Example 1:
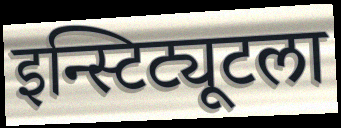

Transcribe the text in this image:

इन्स्टिट्यूटला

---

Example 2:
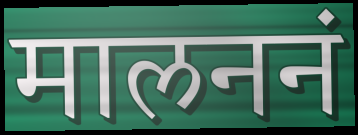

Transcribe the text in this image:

मालननं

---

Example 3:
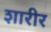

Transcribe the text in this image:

शारीर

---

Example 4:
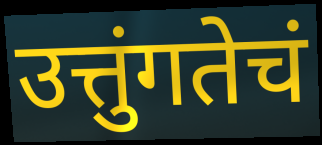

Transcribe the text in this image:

उत्तुंगतेचं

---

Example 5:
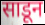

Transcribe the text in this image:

साडून